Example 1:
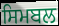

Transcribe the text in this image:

ਸਿਮਬਲ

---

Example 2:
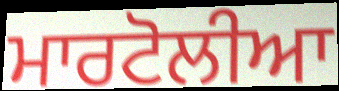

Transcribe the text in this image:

ਮਾਰਟੋਲੀਆ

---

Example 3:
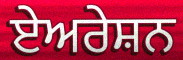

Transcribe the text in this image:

ਏਅਰੇਸ਼ਨ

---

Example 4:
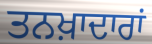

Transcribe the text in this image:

ਤਨਖ਼ਾਦਾਰਾਂ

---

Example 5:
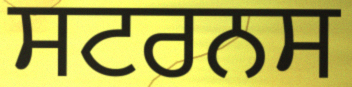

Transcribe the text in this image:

ਸਟਰਨਸ